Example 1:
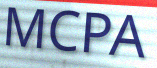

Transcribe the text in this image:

MCPA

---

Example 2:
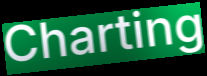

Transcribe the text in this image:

Charting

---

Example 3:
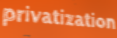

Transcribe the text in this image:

privatization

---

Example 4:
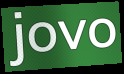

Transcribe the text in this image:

jovo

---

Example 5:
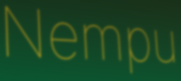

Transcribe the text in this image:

Nempu